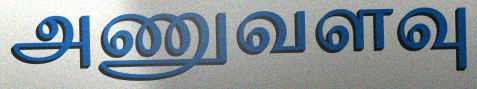
அணுவளவு